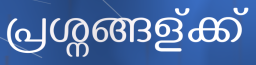
പ്രശ്നങ്ങള്ക്ക്